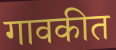
गावकीत